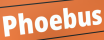
Phoebus